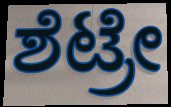
ಶೆಟ್ರೇ